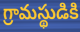
గ్రామస్థుడికి